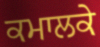
ਕਮਾਲਕੇ